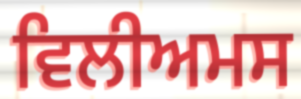
ਵਿਲੀਅਮਸ